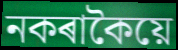
নকৰাকৈয়ে